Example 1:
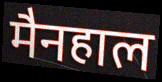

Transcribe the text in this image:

मैनहाल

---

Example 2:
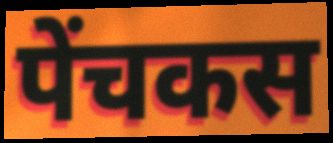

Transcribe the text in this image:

पेंचकस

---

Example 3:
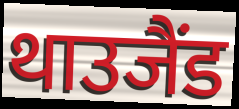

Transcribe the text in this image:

थाउजैंड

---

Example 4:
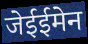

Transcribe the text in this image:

जेईईमेन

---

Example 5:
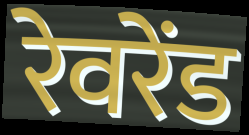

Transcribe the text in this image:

रेवरेंड